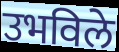
उभविले